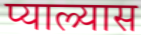
प्याल्यास